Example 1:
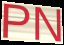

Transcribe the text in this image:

PN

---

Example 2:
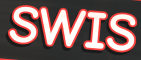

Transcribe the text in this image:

SWIS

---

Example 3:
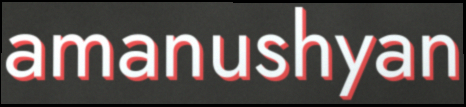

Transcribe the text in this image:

amanushyan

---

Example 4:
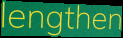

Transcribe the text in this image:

lengthen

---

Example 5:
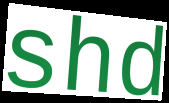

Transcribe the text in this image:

shd